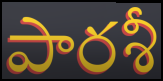
పారశీ